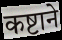
कष्टाने